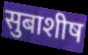
सुबाशीष